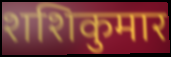
शशिकुमार